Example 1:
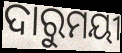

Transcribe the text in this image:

ଦାରୁମୟୀ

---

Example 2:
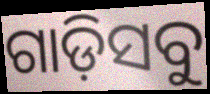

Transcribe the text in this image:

ଗାଡ଼ିସବୁ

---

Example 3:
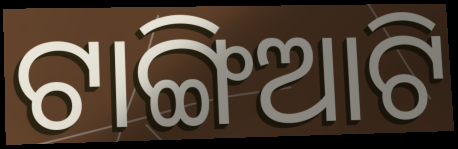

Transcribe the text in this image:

ଟାଙ୍ଗିଆଟି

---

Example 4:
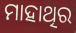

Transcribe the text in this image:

ମାହାଥିର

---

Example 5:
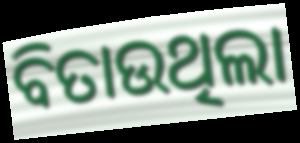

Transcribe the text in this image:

ବିତାଉଥିଲା